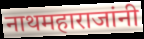
नाथमहाराजांनी